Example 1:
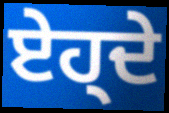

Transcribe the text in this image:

ਏਹ੍ਦੇ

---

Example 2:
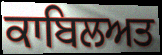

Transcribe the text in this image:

ਕਾਬਿਲਅਤ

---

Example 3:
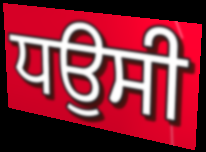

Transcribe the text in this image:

ਧਉਸੀ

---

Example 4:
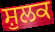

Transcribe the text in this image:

ਸ਼ੁਲਕ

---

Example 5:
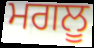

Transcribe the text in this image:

ਮਗਲੂ